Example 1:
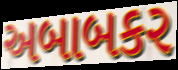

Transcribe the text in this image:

અબાબકર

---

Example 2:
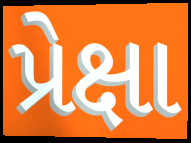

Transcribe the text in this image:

પ્રેક્ષા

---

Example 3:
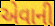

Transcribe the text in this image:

એવાની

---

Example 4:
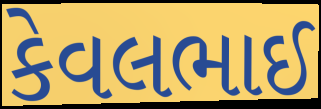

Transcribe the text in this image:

કેવલભાઈ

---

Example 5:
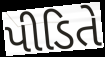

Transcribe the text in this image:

પીડિતે